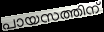
പായസത്തിന്